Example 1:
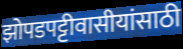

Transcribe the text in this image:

झोपडपट्टीवासीयांसाठी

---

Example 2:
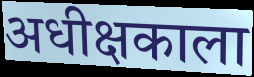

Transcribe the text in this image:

अधीक्षकाला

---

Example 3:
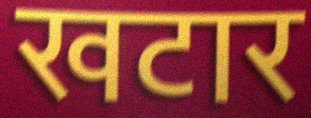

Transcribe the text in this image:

खटार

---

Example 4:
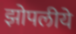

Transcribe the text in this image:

झोपलीये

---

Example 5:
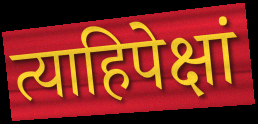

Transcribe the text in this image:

त्याहिपेक्षां